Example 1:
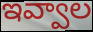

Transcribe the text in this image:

ఇవ్వాల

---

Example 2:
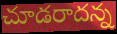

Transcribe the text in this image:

చూడరాదన్న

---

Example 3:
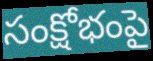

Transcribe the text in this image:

సంక్షోభంపై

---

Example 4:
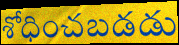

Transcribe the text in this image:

శోధించబడడు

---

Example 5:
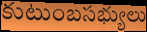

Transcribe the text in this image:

కుటుంబసభ్యులు